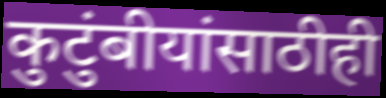
कुटुंबीयांसाठीही